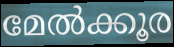
മേൽക്കൂര